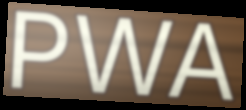
PWA